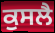
ਕੁਸਲੈ